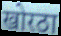
खोरठा